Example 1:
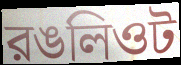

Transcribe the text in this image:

রঙলিওট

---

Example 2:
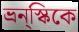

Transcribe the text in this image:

ভ্রন্‌স্কিকে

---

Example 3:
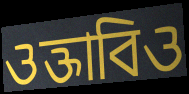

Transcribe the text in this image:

ওক্তাবিও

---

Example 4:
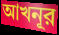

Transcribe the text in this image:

আখনূর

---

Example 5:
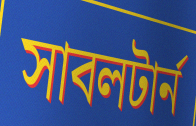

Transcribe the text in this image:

সাবলটার্ন